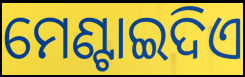
ମେଣ୍ଟାଇଦିଏ